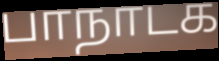
பாநாடக